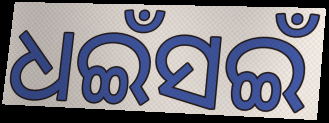
ଧଇଁସଇଁ